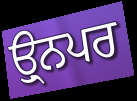
ਉ੍ਨਪਰ